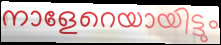
നാളേറെയായിട്ടും